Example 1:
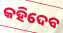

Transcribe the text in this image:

କହିଦେବ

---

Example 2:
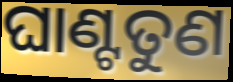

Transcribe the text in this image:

ଘାଣ୍ଟତୁଣ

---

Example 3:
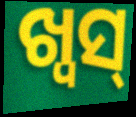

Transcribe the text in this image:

ଖ୍ୱସ୍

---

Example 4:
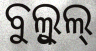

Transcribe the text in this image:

ବୁଲ୍ବୁଲ୍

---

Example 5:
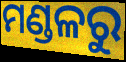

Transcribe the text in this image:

ମଣ୍ଡଳରୁ